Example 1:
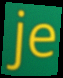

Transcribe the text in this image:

je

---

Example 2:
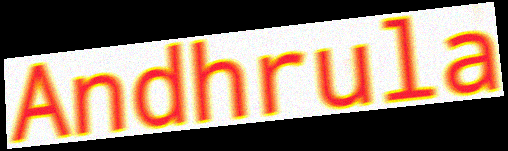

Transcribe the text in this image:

Andhrula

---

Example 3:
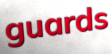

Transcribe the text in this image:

guards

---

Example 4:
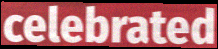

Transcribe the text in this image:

celebrated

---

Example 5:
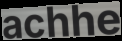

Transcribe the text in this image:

achhe